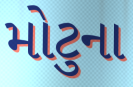
મોટુના